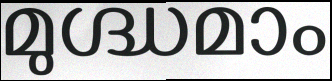
മുഗ്ദ്ധമാം